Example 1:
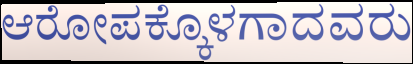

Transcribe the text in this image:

ಆರೋಪಕ್ಕೊಳಗಾದವರು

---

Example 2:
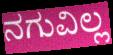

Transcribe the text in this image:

ನಗುವಿಲ್ಲ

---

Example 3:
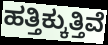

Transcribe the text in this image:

ಹತ್ತಿಕ್ಕುತ್ತಿವೆ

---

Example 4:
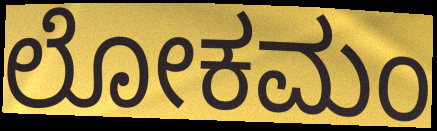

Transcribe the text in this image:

ಲೋಕಮಂ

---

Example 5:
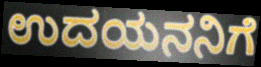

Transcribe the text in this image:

ಉದಯನನಿಗೆ